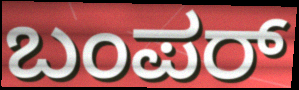
ಬಂಪರ್